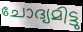
ചോദ്യമിട്ടു